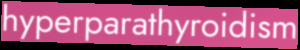
hyperparathyroidism